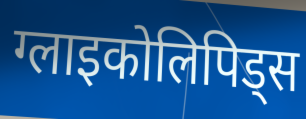
ग्लाइकोलिपिड्स